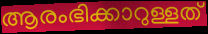
ആരംഭിക്കാറുള്ളത്